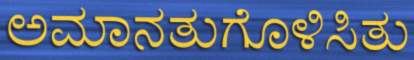
ಅಮಾನತುಗೊಳಿಸಿತು